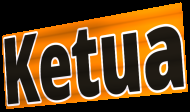
Ketua